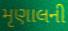
મૃણાલની